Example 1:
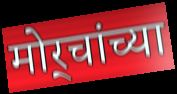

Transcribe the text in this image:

मोर्चांच्या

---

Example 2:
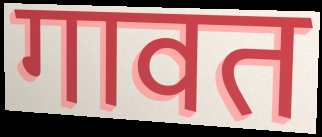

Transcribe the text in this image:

गावत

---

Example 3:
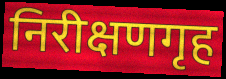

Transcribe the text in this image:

निरीक्षणगृह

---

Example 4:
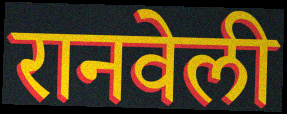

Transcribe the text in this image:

रानवेली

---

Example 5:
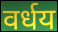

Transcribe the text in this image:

वर्धय